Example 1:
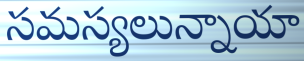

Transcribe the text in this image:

సమస్యలున్నాయా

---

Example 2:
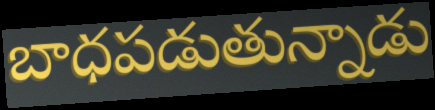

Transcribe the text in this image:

బాధపడుతున్నాడు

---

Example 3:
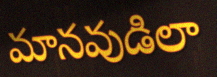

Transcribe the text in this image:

మానవుడిలా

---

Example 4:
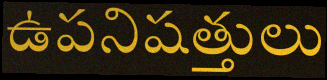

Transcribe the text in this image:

ఉపనిషత్తులు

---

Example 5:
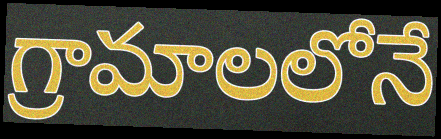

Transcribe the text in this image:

గ్రామాలలోనే